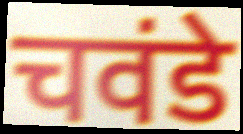
चवंडे